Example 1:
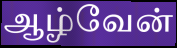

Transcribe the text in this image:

ஆழ்வேன்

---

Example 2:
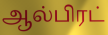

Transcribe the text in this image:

ஆல்பிரட்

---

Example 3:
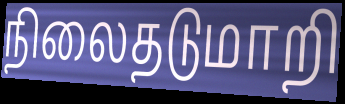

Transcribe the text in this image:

நிலைதடுமாறி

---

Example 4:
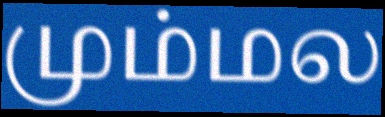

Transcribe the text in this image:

மும்மல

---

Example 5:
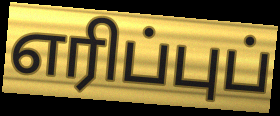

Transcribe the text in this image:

எரிப்புப்